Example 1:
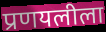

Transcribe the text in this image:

प्रणयलीला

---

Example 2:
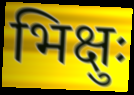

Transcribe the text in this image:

भिक्षुः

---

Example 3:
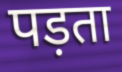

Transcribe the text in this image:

पड़ता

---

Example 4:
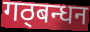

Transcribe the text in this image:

गठ्बन्धन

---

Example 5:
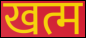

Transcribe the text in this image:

खत्म